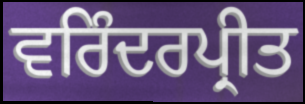
ਵਰਿੰਦਰਪ੍ਰੀਤ